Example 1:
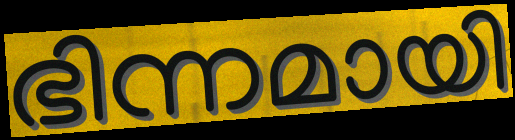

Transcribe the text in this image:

ഭിന്നമായി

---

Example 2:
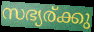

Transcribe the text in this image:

സഭ്യര്ക്കു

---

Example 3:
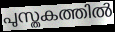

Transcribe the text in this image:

പുസ്തകത്തിൽ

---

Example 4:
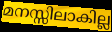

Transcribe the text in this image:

മനസ്സിലാകില്ല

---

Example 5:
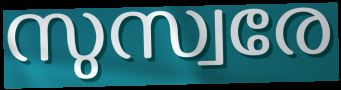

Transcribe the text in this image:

സുസ്വരേ